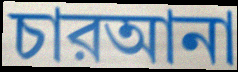
চারআনা